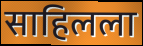
साहिलला